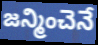
జన్మించెనే